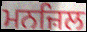
ਮਨਜ਼ਿਲ